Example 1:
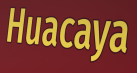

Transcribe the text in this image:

Huacaya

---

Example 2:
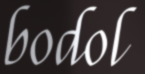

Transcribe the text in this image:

bodol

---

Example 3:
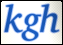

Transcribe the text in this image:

kgh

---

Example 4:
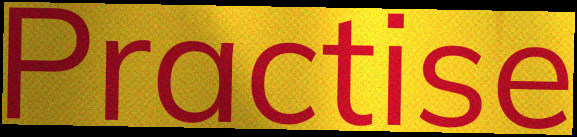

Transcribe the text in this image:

Practise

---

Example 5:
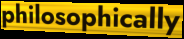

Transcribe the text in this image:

philosophically